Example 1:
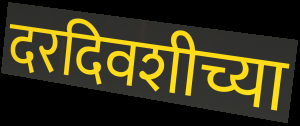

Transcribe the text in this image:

दरदिवशीच्या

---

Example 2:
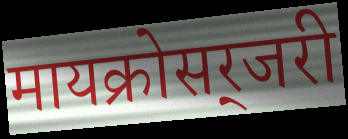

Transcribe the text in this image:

मायक्रोसर्जरी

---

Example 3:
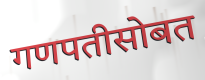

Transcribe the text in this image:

गणपतीसोबत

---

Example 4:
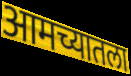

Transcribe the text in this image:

आमच्यातला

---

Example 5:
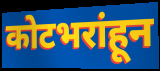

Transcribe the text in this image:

कोटभरांहून